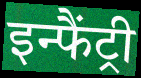
इन्फैंट्री